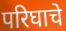
परिघाचे